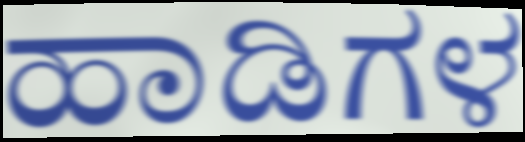
ಹಾಡಿಗಳ